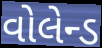
વોલેન્ડ